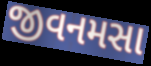
જીવનમસા